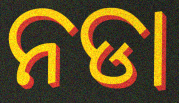
ନଡା